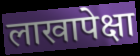
लाखापेक्षा